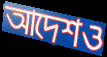
আদেশও